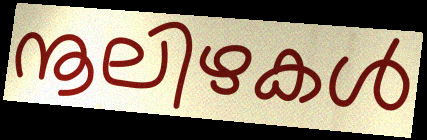
നൂലിഴകൾ